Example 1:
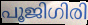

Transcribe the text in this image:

പൂജിഗിരി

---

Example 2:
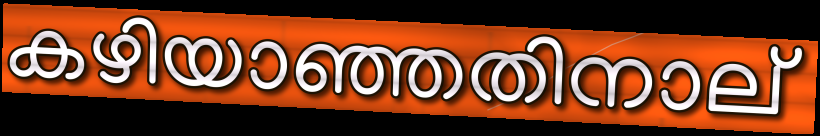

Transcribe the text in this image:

കഴിയാഞ്ഞതിനാല്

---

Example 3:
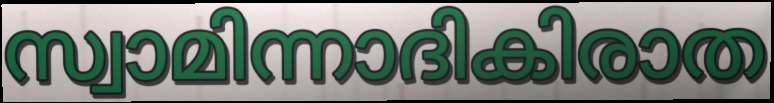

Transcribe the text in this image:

സ്വാമിന്നാദികിരാത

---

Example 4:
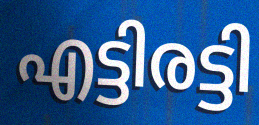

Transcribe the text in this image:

എട്ടിരട്ടി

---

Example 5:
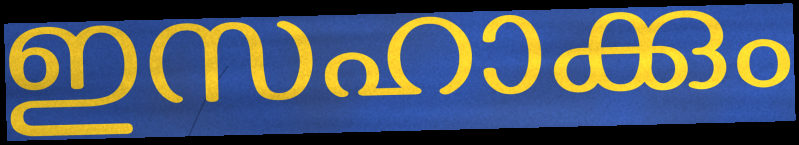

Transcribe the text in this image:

ഇസഹാക്കും